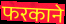
फरकाने